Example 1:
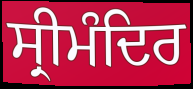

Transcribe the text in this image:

ਸ੍ਰੀਮੰਦਿਰ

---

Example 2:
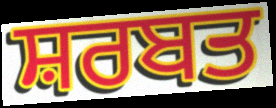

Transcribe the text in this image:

ਸ਼ਰਬਤ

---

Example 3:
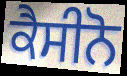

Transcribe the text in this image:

ਕੈਸੀਨੋ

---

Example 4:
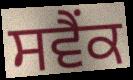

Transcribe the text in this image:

ਸਵੈਂਕ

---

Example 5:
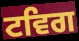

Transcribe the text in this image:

ਟਵਿਗ